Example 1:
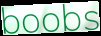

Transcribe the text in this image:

boobs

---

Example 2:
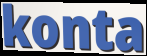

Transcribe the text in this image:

konta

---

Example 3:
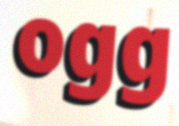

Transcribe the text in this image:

ogg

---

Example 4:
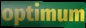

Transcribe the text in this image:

optimum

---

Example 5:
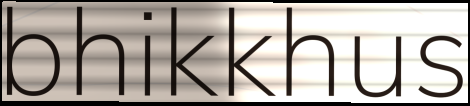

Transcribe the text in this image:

bhikkhus